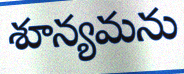
శూన్యమను